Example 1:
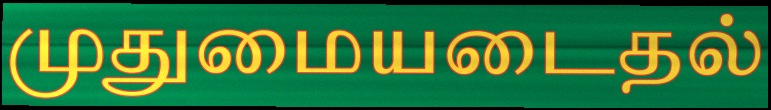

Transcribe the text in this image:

முதுமையடைதல்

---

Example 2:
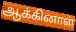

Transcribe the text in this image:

ஆக்கினாள்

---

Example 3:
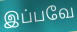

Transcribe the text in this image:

இப்பவே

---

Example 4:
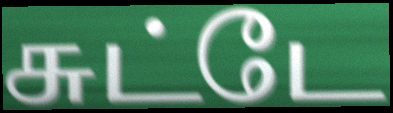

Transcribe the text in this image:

சுட்டே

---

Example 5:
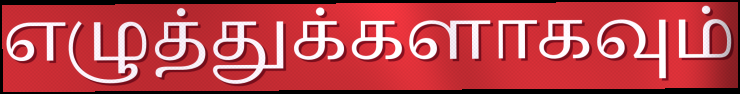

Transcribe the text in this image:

எழுத்துக்களாகவும்